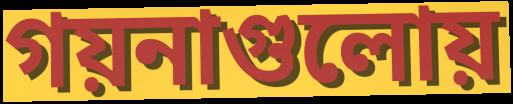
গয়নাগুলোয়